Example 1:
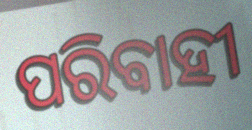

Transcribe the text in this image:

ପରିବାହୀ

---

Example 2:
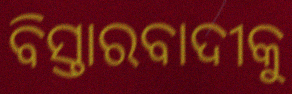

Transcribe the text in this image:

ବିସ୍ତାରବାଦୀକୁ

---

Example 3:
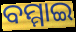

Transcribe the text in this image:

ବମ୍ମାଇ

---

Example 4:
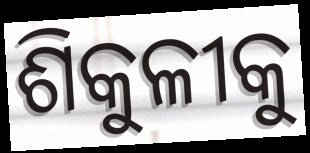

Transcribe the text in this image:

ଶିକୁଳୀକୁ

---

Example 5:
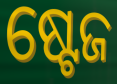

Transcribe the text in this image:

ଷ୍ଟେଜ